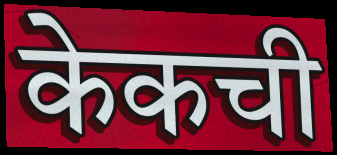
केकची